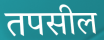
तपसील